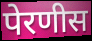
पेरणीस